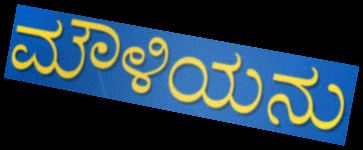
ಮೌಳಿಯನು